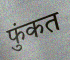
फुंकत